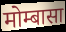
मोम्बासा